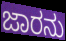
ಜಾರನು